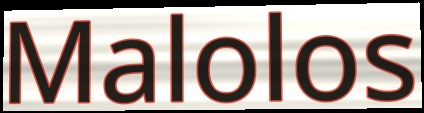
Malolos